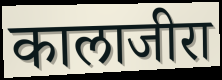
कालाजीरा